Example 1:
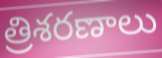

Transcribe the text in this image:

త్రిశరణాలు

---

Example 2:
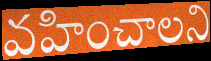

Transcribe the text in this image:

వహించాలని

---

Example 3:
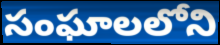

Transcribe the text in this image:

సంఘాలలోని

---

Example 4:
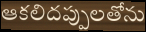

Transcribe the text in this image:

ఆకలిదప్పులతోను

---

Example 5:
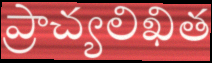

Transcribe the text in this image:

ప్రాచ్యలిఖిత